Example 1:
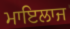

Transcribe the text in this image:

ਮਾਇਲਾਜ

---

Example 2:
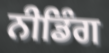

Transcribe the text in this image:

ਨੀਡਿੰਗ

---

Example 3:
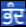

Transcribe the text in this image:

ਭੰਦ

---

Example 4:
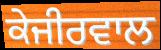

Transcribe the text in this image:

ਕੇਜੀਰਵਾਲ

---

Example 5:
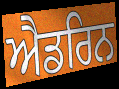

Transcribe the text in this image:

ਐਡਰਿਨ